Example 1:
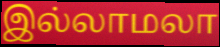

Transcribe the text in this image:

இல்லாமலா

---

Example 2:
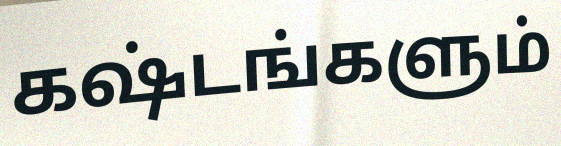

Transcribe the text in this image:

கஷ்டங்களும்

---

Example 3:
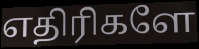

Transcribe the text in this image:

எதிரிகளே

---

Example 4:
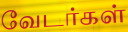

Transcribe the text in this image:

வேடர்கள்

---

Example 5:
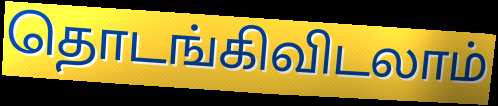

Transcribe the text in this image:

தொடங்கிவிடலாம்